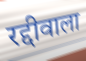
रद्दीवाला